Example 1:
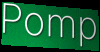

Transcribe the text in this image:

Pomp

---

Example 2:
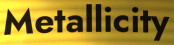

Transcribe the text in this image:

Metallicity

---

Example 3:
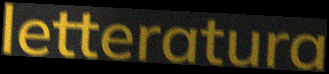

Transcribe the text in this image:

letteratura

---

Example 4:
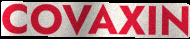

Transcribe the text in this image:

COVAXIN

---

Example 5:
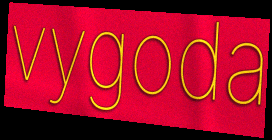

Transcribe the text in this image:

vygoda